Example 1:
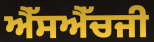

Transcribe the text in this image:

ਐੱਸਐੱਚਜੀ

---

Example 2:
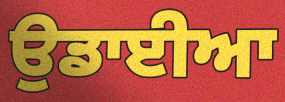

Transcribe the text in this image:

ਉਡਾਈਆ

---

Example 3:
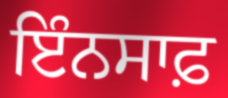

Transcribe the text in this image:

ਇੰਨਸਾਫ਼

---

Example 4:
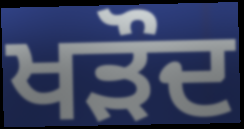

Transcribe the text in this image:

ਖੜੌਦ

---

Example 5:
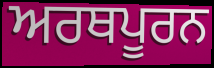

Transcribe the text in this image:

ਅਰਥਪੂਰਨ